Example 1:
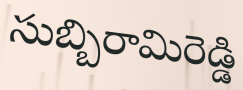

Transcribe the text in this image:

సుబ్బిరామిరెడ్డి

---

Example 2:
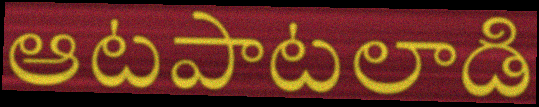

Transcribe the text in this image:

ఆటపాటలాడి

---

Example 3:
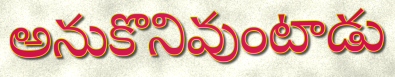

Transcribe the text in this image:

అనుకొనివుంటాడు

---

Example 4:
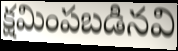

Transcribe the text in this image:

క్షమింపబడినవి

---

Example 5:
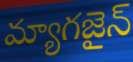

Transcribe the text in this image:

మ్యాగజైన్